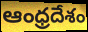
ఆంధ్రదేశం